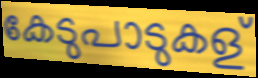
കേടുപാടുകള്